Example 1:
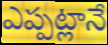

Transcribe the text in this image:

ఎప్పట్లానే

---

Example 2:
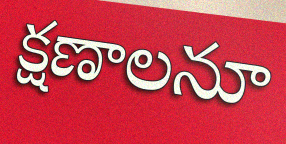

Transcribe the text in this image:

క్షణాలనూ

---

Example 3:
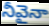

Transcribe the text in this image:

నీవైనా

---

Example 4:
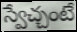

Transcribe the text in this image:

స్వేచ్చంటే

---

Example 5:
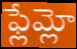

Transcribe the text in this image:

ఫ్లేమ్లో